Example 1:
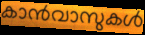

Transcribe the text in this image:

കാൻവാസുകൾ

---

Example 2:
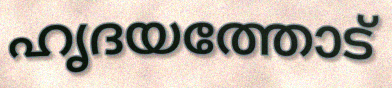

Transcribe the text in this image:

ഹൃദയത്തോട്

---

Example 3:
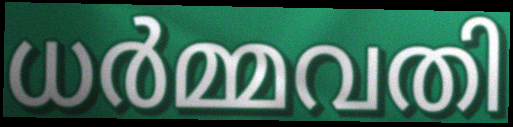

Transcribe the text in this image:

ധർമ്മവതി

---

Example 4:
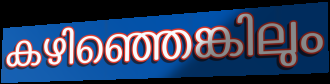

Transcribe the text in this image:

കഴിഞ്ഞെങ്കിലും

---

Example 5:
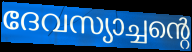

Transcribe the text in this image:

ദേവസ്യാച്ചന്റെ